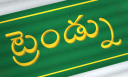
ట్రెండ్ను